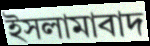
ইসলামাবাদ